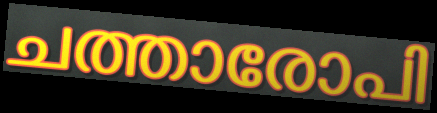
ചത്താരോപി